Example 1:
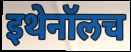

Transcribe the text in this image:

इथेनॉलच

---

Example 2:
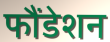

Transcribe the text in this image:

फौंडेशन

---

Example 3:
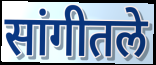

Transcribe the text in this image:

सांगीतले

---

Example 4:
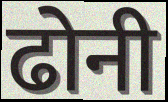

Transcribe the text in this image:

ढोनी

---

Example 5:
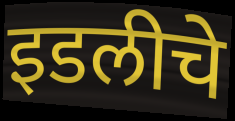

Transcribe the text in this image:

इडलीचे